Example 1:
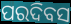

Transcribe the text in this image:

ପରଦିବସ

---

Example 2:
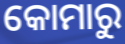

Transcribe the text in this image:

କୋମାରୁ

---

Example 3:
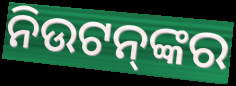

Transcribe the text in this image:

ନିଉଟନ୍‌ଙ୍କର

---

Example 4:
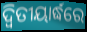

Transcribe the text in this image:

ଦ୍ବିତୀୟାର୍ଦ୍ଧରେ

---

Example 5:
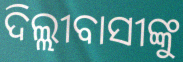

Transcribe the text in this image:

ଦିଲ୍ଲୀବାସୀଙ୍କୁ